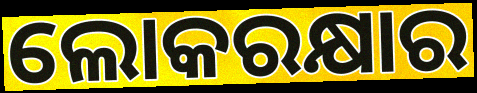
ଲୋକରକ୍ଷାର